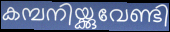
കമ്പനിയ്ക്കുവേണ്ടി